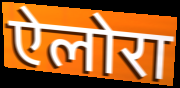
ऐलोरा